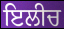
ਇਲੀਚ